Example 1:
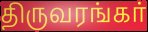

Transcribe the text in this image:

திருவரங்கர்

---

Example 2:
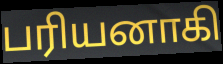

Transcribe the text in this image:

பரியனாகி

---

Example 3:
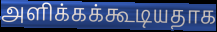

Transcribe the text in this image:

அளிக்கக்கூடியதாக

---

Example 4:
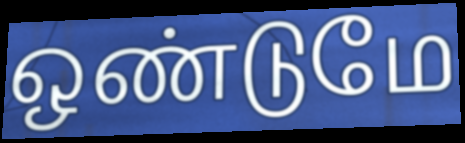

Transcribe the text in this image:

ஒண்டுமே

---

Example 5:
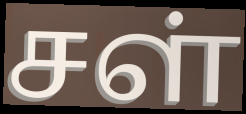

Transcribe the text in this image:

சள்